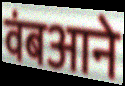
वंबआने